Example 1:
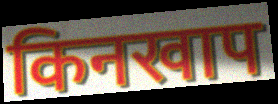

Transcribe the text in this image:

किनखाप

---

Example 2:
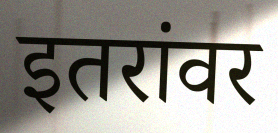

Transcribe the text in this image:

इतरांवर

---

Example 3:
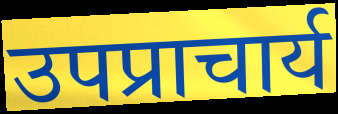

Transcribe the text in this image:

उपप्राचार्य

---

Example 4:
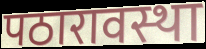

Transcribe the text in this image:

पठारावस्था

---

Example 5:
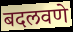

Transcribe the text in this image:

बदलवणे